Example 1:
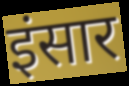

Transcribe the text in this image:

इंसार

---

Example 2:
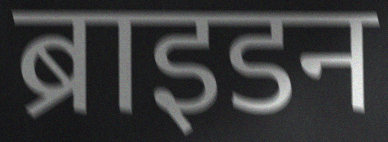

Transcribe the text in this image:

ब्राइडन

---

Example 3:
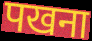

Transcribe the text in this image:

पखना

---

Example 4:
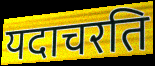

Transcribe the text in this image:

यदाचरति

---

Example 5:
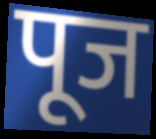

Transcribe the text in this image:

पूज